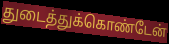
துடைத்துக்கொண்டேன்